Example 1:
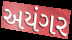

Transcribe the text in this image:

અયંગર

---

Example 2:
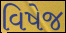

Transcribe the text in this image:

વિષેજ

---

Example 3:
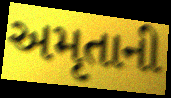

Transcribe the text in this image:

અમૃતાની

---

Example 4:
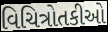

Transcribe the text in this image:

વિચિત્રોતકીઓ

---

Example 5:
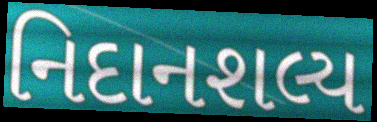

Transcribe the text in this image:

નિદાનશલ્ય